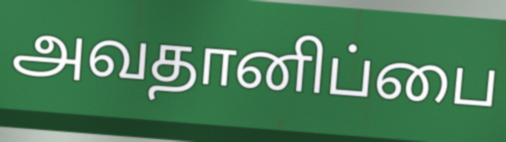
அவதானிப்பை